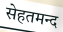
सेहतमन्द